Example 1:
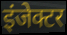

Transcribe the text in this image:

इंजेक्टर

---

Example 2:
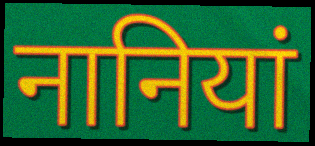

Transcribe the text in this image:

नानियां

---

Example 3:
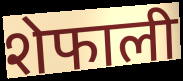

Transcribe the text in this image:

शेफाली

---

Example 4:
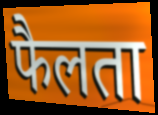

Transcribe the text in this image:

फैलता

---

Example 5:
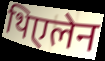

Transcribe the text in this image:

थिएलेन